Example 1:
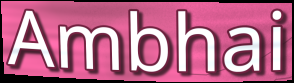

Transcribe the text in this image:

Ambhai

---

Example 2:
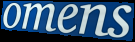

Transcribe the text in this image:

omens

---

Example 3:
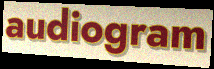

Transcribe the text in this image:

audiogram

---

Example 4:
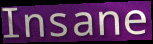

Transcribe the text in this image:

Insane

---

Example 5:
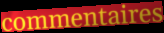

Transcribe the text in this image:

commentaires